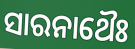
ସାରନାଥୈଃ